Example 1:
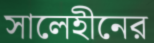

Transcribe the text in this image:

সালেহীনের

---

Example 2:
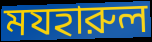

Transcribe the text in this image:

মযহারুল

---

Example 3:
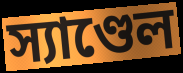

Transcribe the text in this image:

স্যাণ্ডেল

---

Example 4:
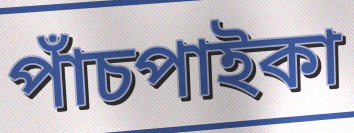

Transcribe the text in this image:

পাঁচপাইকা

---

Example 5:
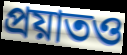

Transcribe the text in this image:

প্রয়াতও